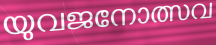
യുവജനോത്സവ